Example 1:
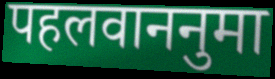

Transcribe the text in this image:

पहलवाननुमा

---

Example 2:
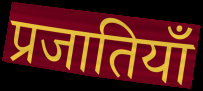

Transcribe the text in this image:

प्रजातियाँ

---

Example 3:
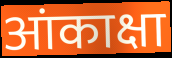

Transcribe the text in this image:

आंकाक्षा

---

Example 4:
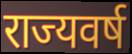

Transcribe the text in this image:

राज्यवर्ष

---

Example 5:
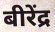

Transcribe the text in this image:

बीरेंद्र